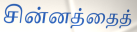
சின்னத்தைத்